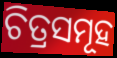
ଚିତ୍ରସମୂହ